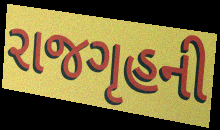
રાજગૃહની